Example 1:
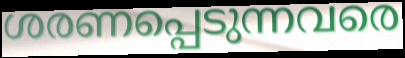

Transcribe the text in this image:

ശരണപ്പെടുന്നവരെ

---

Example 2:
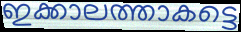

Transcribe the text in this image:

ഇക്കാലത്താകട്ടെ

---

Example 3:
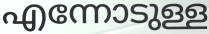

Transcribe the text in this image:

എന്നോടുള്ള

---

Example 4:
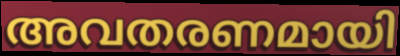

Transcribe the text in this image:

അവതരണമായി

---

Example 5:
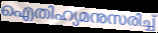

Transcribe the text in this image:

ഐതിഹ്യമനുസരിച്ച്